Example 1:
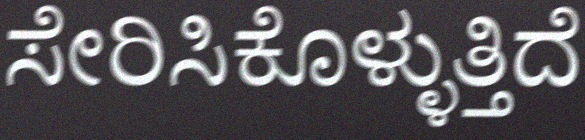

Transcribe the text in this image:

ಸೇರಿಸಿಕೊಳ್ಳುತ್ತಿದೆ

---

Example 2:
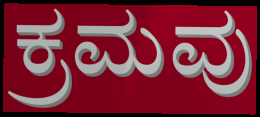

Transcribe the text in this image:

ಕ್ರಮವು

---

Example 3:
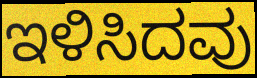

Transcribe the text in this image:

ಇಳಿಸಿದವು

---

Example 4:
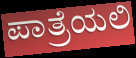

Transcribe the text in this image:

ಪಾತ್ರೆಯಲಿ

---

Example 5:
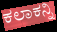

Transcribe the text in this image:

ಕಲಾಕನ್ನಿ